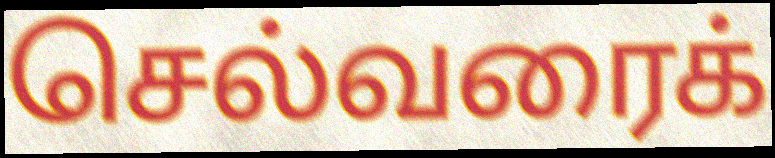
செல்வரைக்